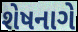
શેષનાગે